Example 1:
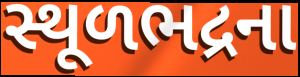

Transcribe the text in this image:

સ્થૂળભદ્રના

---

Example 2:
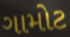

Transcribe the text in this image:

ગામોટ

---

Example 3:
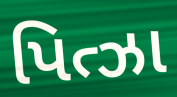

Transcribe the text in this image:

પિત્ઝા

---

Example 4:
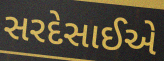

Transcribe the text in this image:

સરદેસાઈએ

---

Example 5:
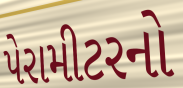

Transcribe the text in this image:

પેરામીટરનો